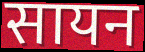
सायन